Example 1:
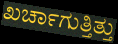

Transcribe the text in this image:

ಖರ್ಚಾಗುತ್ತಿತ್ತು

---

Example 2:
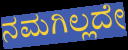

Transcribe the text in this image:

ನಮಗಿಲ್ಲದೇ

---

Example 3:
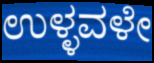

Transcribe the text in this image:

ಉಳ್ಳವಳೇ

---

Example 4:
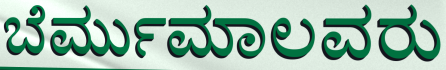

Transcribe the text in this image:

ಬೆರ್ಮುಮಾಲವರು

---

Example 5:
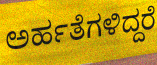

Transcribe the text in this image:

ಅರ್ಹತೆಗಳಿದ್ದರೆ